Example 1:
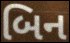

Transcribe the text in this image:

બિન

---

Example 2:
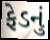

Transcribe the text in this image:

ફેડનું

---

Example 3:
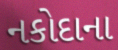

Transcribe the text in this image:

નકોદાના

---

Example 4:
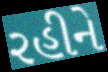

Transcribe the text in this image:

રહીને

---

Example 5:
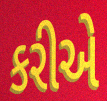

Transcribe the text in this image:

કરીએ